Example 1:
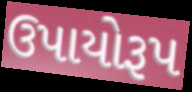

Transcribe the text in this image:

ઉપાયોરૂપ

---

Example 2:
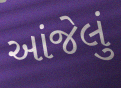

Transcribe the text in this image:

આંજેલું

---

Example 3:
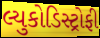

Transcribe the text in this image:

લ્યુકોડિસ્ટ્રોફી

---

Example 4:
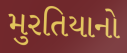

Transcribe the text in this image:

મુરતિયાનો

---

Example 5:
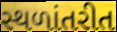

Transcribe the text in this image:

સ્થળાંતરીત